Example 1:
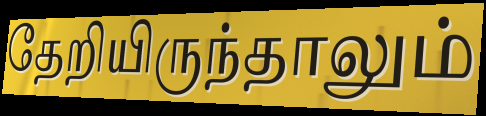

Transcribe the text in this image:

தேறியிருந்தாலும்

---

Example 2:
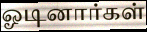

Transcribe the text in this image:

ஓடினார்கள்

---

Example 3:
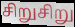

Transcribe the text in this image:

சிறுசிறு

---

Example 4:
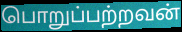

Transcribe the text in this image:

பொறுப்பற்றவன்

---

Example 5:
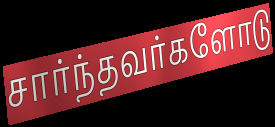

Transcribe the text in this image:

சார்ந்தவர்களோடு